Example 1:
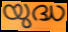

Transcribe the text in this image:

യുദ്ധ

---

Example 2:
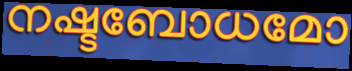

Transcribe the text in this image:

നഷ്ടബോധമോ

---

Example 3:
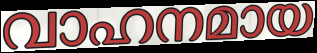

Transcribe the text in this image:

വാഹനമായ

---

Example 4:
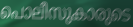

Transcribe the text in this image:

പൊലീസുകാരുടെ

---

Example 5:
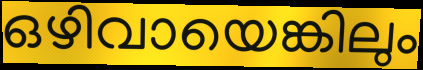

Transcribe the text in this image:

ഒഴിവായെങ്കിലും